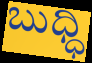
ಬುಧ್ಧಿ